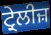
ਟ੍ਰੇਲੀਜ਼